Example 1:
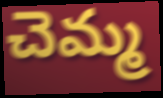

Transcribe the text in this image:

చెమ్మ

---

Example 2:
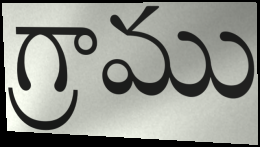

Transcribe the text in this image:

గ్రాము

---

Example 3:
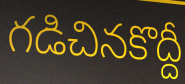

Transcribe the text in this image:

గడిచినకొద్దీ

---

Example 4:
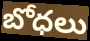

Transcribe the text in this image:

బోధలు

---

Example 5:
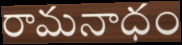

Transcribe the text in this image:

రామనాధం